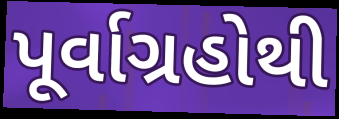
પૂર્વાગ્રહોથી